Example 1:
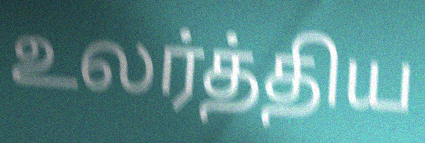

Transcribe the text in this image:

உலர்த்திய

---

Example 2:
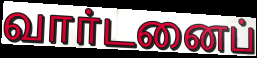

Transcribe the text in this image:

வார்டனைப்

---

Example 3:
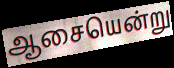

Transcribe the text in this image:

ஆசையென்று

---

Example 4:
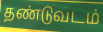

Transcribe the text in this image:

தண்டுவடம்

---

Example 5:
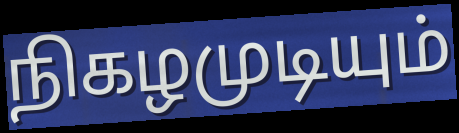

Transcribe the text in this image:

நிகழமுடியும்